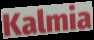
Kalmia